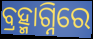
ବ୍ରହ୍ମାଗ୍ନିରେ